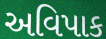
અવિપાક